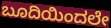
ಬೂದಿಯಿಂದಲೇ